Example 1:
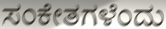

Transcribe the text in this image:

ಸಂಕೇತಗಳೆಂದು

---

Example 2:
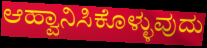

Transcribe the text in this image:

ಆಹ್ವಾನಿಸಿಕೊಳ್ಳುವುದು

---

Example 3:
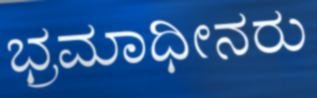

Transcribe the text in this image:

ಭ್ರಮಾಧೀನರು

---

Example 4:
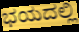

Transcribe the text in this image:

ಭಯದಲ್ಲಿ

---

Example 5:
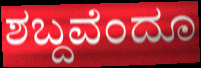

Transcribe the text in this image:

ಶಬ್ದವೆಂದೂ